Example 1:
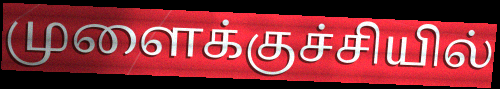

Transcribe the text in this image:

முளைக்குச்சியில்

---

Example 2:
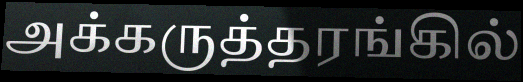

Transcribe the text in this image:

அக்கருத்தரங்கில்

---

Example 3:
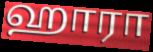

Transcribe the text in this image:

ஹாரா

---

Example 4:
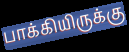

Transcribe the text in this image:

பாக்கியிருக்கு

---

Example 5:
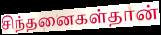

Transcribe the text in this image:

சிந்தனைகள்தான்